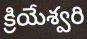
క్రియేశ్వరి